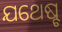
ଯଥେଷ୍ଚ